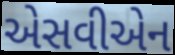
એસવીએન